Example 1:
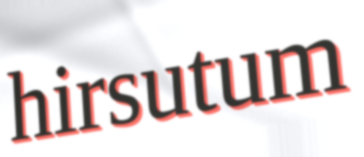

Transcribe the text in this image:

hirsutum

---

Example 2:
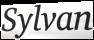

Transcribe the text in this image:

Sylvan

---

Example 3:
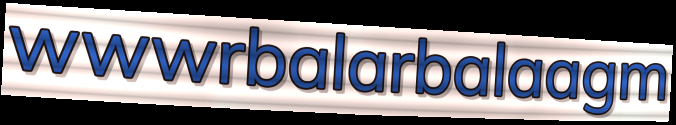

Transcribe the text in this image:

wwwrbalarbalaagm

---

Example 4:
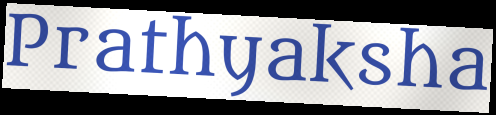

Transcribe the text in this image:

Prathyaksha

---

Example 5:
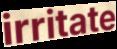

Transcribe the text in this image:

irritate